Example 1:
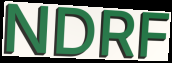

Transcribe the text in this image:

NDRF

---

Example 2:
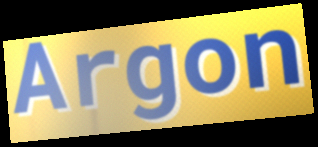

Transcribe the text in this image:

Argon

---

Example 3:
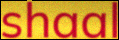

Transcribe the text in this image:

shaal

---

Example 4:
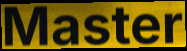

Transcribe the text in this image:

Master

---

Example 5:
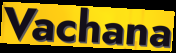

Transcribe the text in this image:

Vachana